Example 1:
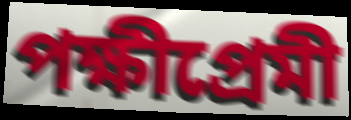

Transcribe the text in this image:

পক্ষীপ্রেমী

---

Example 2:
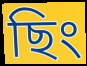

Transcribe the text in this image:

ছিং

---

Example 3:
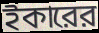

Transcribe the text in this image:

ইকারের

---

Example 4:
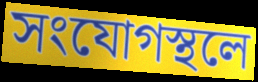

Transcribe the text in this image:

সংযোগস্থলে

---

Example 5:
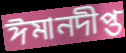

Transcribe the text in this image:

ঈমানদীপ্ত